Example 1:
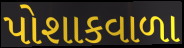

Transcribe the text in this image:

પોશાકવાળા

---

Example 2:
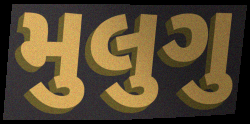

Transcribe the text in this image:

મુલુગુ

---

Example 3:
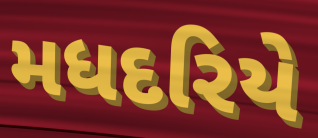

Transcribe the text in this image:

મધદરિયે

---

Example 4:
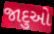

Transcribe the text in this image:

જાદુઓ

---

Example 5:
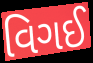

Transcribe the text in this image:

વિગઈ